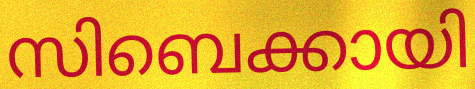
സിബെക്കായി